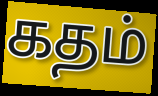
கதம்